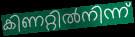
കിണറ്റിൽനിന്ന്